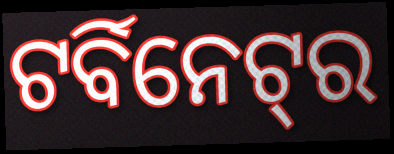
ଟର୍ବିନେଟ୍‌ର